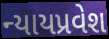
ન્યાયપ્રવેશ